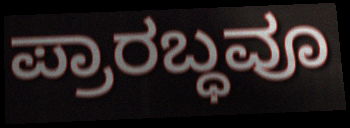
ಪ್ರಾರಬ್ಧವೂ